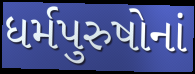
ધર્મપુરુષોનાં